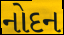
નોદન